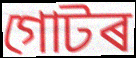
গোটৰ